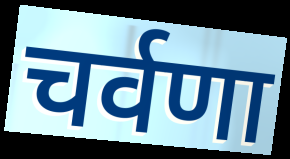
चर्वणा